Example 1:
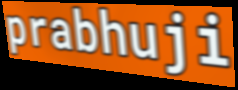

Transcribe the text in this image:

prabhuji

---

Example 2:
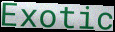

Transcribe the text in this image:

Exotic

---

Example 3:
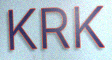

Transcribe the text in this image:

KRK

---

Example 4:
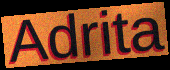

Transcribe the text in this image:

Adrita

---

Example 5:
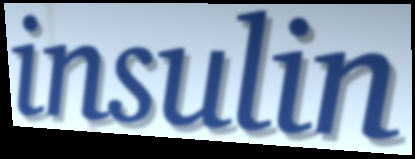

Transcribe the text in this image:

insulin